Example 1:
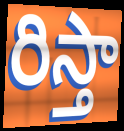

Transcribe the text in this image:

రిస్తా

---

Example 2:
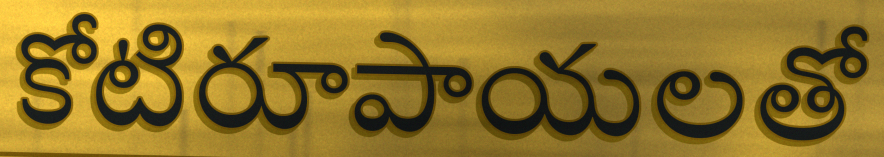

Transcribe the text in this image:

కోటిరూపాయలతో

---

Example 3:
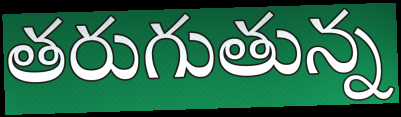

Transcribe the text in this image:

తరుగుతున్న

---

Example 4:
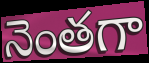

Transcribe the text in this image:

నెంతగా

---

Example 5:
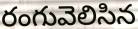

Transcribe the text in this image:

రంగువెలిసిన